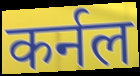
कर्नल